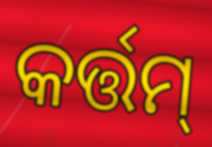
କର୍ତ୍ତମ୍